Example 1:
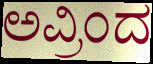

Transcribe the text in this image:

ಅವ್ರಿಂದ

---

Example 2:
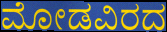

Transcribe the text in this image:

ಮೋಡವಿರದ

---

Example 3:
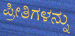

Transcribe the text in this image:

ಪ್ರೀತಿಗಳನ್ನು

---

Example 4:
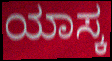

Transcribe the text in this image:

ಯಾಸ್ಕ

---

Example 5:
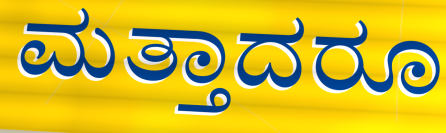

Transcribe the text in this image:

ಮತ್ತಾದರೂ